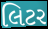
લિટર